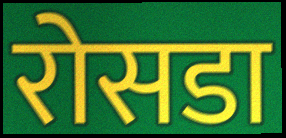
रोसडा